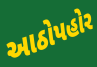
આઠોપહોર